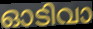
ഓടിവാ